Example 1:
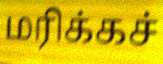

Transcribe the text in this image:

மரிக்கச்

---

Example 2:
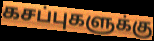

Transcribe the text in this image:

கசப்புகளுக்கு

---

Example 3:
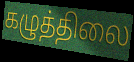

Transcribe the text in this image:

கழுத்திலை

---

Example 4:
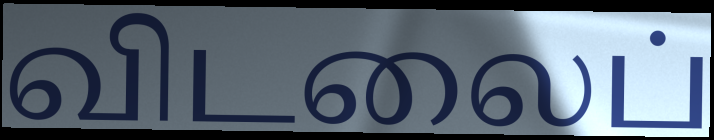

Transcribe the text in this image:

விடலைப்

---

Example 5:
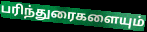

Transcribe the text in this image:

பரிந்துரைகளையும்